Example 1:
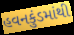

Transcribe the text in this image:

હવનકુંડમાંથી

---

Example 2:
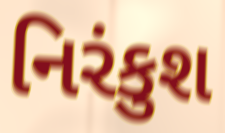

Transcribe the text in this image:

નિરંકુશ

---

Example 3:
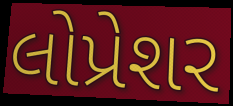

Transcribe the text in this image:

લોપ્રેશર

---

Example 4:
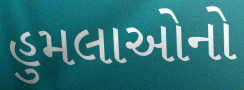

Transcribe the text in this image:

હુમલાઓનો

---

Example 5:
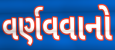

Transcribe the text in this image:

વર્ણવવાનો